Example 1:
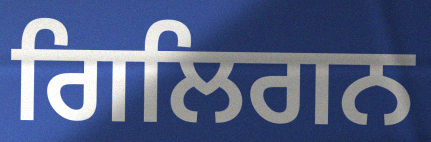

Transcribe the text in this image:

ਗਿਲਿਗਨ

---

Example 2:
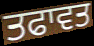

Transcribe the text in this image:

ਤਫਾਵਤ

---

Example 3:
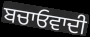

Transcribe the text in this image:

ਬਚਾਓਵਾਦੀ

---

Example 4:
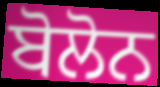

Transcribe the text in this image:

ਬੋਲੋਨ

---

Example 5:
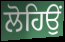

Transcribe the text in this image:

ਲੋਹਿਉਂ